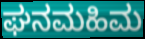
ಘನಮಹಿಮ